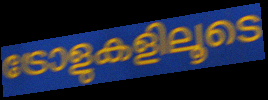
ട്രോളുകളിലൂടെ